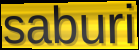
saburi